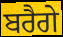
ਬਰੈਗੇ